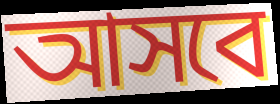
আসবে